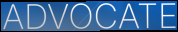
ADVOCATE